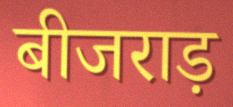
बीजराड़